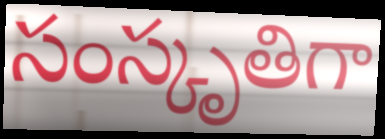
సంస్కృతిగా